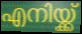
എനിയ്ക്ക്